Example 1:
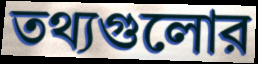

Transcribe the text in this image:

তথ্যগুলোর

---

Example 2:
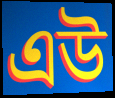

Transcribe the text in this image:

এউ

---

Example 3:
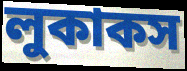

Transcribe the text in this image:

লুকাকস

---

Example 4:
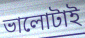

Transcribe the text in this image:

ভালোটাই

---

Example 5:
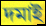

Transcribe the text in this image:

দমাই